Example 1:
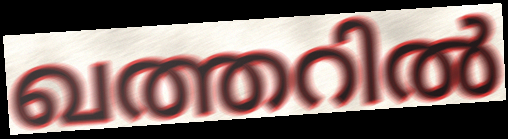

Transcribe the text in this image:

ഖത്തറിൽ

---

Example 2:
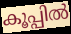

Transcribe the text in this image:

കൂപ്പിൽ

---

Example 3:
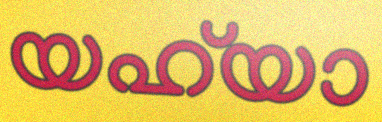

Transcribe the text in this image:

യഹ്‌യാ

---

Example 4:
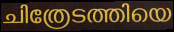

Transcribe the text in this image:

ചിത്രേടത്തിയെ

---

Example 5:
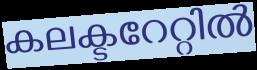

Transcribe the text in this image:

കലക്ടറേറ്റിൽ